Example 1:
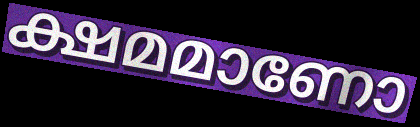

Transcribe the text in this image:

ക്ഷമമാണോ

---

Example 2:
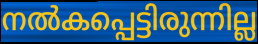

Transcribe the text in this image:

നൽകപ്പെട്ടിരുന്നില്ല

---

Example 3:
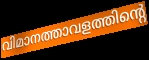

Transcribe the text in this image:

വിമാനത്താവളത്തിന്റെ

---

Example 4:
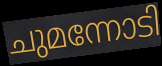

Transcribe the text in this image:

ചുമന്നോടി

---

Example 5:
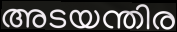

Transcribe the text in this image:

അടയന്തിര